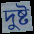
দুষ্ট